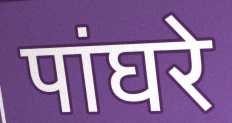
पांघरे